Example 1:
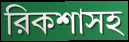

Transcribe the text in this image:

রিকশাসহ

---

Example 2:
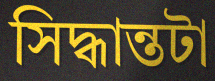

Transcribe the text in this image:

সিদ্ধান্তটা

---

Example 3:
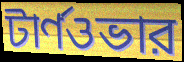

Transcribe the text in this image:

টার্ণওভার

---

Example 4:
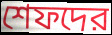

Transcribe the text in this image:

শেফদের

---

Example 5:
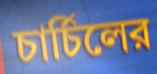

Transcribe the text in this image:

চার্চিলের